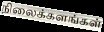
நிலைக்களங்கள்